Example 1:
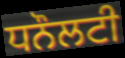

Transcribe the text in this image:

ਧਨੌਲਟੀ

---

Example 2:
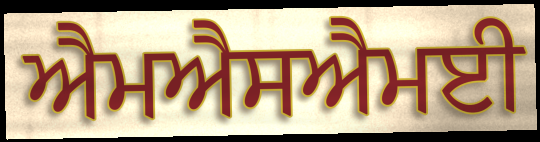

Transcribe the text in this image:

ਐਮਐਸਐਮਈ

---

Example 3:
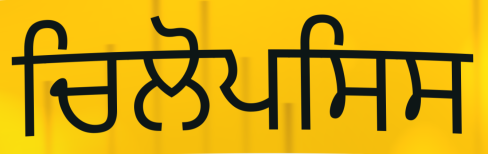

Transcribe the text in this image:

ਚਿਲੋਪਸਿਸ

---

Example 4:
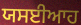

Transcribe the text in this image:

ਯਸਈਆਹ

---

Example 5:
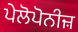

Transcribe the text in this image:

ਪੇਲੋਪੋਨੀਜ਼